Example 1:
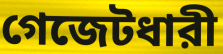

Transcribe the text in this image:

গেজেটধারী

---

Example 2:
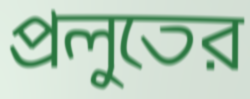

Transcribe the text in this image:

প্রলুতের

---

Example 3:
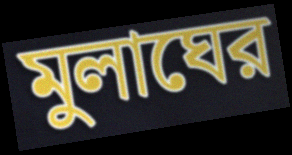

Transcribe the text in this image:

মুলাঘের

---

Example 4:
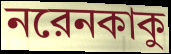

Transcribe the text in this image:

নরেনকাকু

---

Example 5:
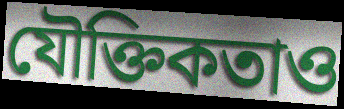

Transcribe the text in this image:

যৌক্তিকতাও